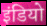
इंडियो